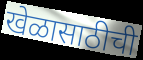
खेळासाठीची